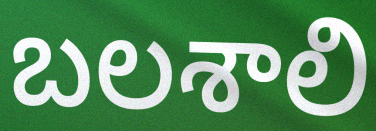
బలశాలి